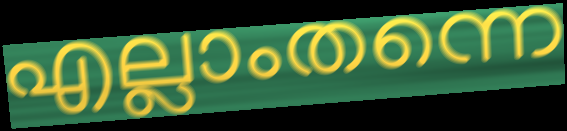
എല്ലാംതന്നെ